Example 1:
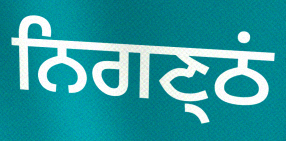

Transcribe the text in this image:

ਨਿਗਣ੍ਠਂ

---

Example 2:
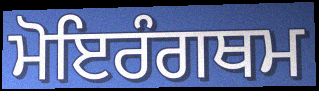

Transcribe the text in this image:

ਮੋਇਰੰਗਥਮ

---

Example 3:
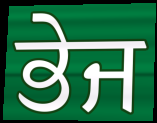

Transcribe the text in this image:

ਭੇਜ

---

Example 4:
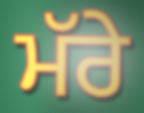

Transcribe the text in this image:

ਮੱਰੇ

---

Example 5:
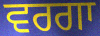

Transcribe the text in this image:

ਵਰਗਾ